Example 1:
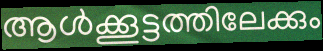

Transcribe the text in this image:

ആൾക്കൂട്ടത്തിലേക്കും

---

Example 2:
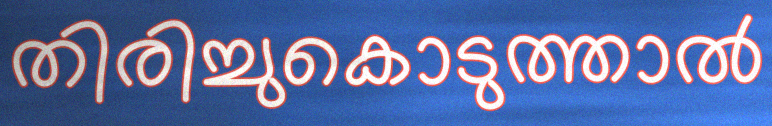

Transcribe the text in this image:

തിരിച്ചുകൊടുത്താൽ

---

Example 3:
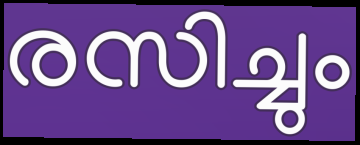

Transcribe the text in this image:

രസിച്ചും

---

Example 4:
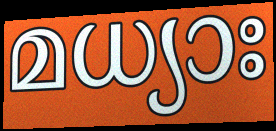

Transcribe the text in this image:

മധ്യാഃ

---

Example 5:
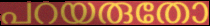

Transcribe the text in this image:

പറയരുതോ